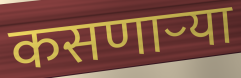
कसणाऱ्या